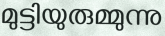
മുട്ടിയുരുമ്മുന്നു